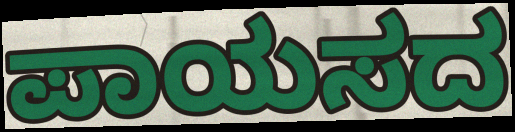
ಪಾಯಸದ